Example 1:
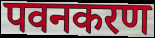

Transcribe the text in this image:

पवनकरण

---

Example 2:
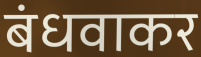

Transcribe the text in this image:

बंधवाकर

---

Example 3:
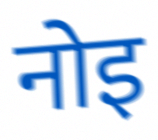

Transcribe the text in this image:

नोइ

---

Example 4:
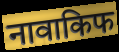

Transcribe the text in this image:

नावाकिफ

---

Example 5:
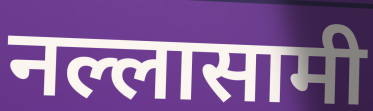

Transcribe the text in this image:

नल्लासामी